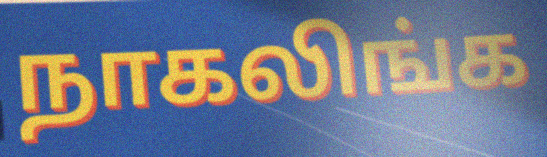
நாகலிங்க